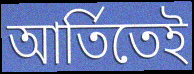
আর্তিতেই